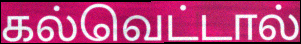
கல்வெட்டால்